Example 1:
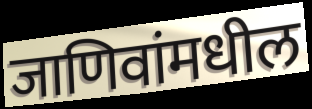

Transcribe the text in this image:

जाणिवांमधील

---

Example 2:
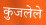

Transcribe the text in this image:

कुजलेले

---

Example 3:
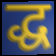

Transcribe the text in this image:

द्ध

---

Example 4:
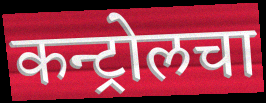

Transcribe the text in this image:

कन्ट्रोलचा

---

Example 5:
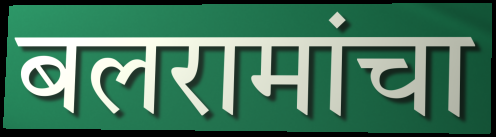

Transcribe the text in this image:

बलरामांचा